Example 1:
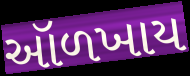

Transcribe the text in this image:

ઑળખાય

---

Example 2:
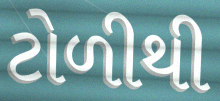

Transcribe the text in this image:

ટોળીથી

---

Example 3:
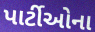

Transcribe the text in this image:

પાર્ટીઓના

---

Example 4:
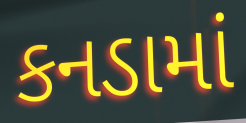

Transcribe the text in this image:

કનડામાં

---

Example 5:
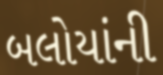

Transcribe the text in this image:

બલોયાંની